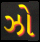
ઝો